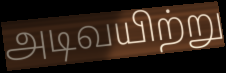
அடிவயிற்று